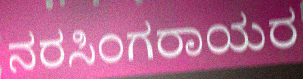
ನರಸಿಂಗರಾಯರ